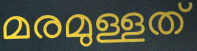
മരമുള്ളത്